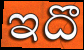
ఇదొ